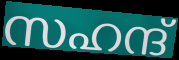
സഹന്ദ്